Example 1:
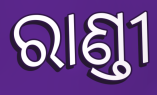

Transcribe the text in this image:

ରାଣ୍ଡୀ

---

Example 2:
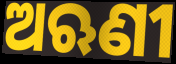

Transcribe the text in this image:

ଅଋଣୀ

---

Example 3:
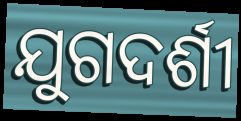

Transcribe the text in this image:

ଯୁଗଦର୍ଶୀ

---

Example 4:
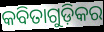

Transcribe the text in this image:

କବିତାଗୁଡ଼ିକର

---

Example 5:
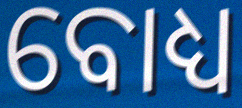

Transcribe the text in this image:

ବୋଧ୍ୟ